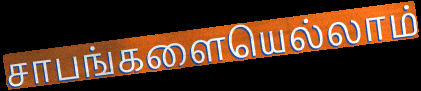
சாபங்களையெல்லாம்